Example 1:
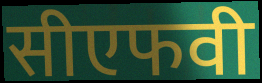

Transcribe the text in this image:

सीएफवी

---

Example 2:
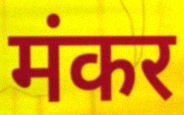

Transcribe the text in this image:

मंकर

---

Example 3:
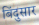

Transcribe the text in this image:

बिंदुसार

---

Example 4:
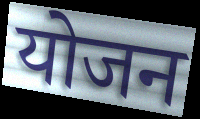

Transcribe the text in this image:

योजन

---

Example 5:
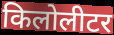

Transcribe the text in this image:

किलोलीटर